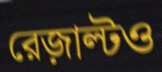
রেজ়াল্টও